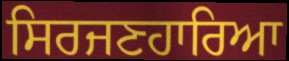
ਸਿਰਜਣਹਾਰਿਆ